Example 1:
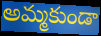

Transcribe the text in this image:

అమ్మకుండా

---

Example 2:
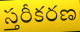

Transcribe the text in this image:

స్తరీకరణ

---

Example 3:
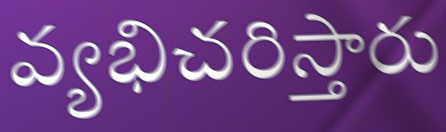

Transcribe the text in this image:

వ్యభిచరిస్తారు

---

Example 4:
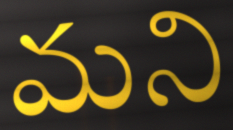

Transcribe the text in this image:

మని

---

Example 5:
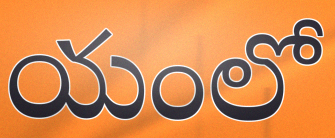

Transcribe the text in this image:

యంలో